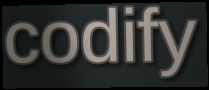
codify